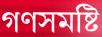
গণসমষ্টি